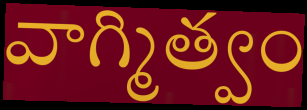
వాగ్మిత్వం